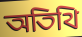
অতিথি